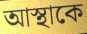
আস্থাকে